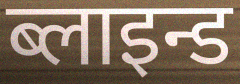
ब्लाइन्ड